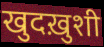
खुदख़ुशी